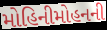
મોહિનીમોહનની